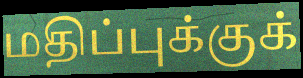
மதிப்புக்குக்